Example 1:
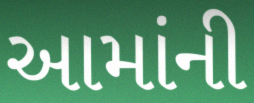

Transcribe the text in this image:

આમાંની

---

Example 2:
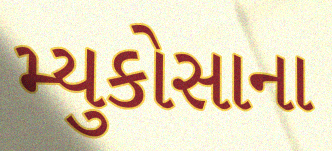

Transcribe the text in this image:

મ્યુકોસાના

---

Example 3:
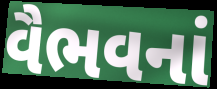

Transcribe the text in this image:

વૈભવનાં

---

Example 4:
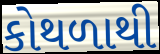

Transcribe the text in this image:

કોથળાથી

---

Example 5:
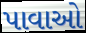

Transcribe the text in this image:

પાવાઓ